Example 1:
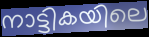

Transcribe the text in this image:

നാട്ടികയിലെ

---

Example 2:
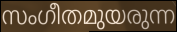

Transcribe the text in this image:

സംഗീതമുയരുന്ന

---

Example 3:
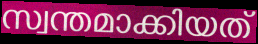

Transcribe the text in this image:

സ്വന്തമാക്കിയത്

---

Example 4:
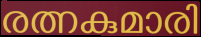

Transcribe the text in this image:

രത്നകുമാരി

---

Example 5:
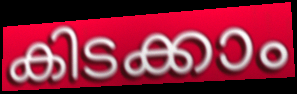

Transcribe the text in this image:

കിടക്കാം